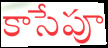
కాసేపూ